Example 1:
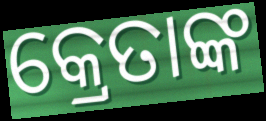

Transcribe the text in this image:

କ୍ରେତାଙ୍କ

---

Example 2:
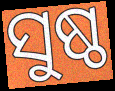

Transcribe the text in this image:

ସୁଷ୍ଠ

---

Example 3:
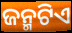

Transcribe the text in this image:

ଜନ୍ମଟିଏ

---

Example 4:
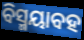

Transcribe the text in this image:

ବିସ୍ମୟାବହ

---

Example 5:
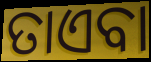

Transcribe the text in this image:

ତାଏବା